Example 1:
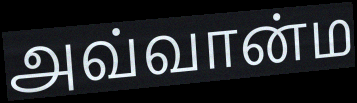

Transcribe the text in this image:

அவ்வான்ம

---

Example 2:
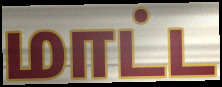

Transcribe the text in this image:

மாட்ட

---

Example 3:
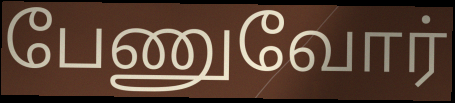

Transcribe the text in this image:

பேணுவோர்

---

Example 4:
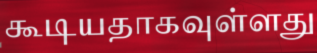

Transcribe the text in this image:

கூடியதாகவுள்ளது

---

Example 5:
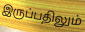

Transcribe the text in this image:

இருப்பதிலும்